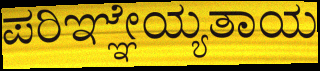
ಪರಿಞ್ಞೇಯ್ಯತಾಯ